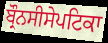
ਬ੍ਰੌਨਸੀਸੇਪਟਿਕਾ